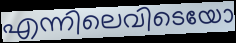
എന്നിലെവിടെയോ